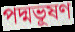
পদ্মভূষণ